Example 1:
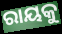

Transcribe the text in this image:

ରାୟକୁ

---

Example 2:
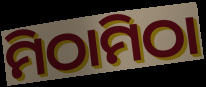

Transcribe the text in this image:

ମିଠାମିଠା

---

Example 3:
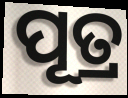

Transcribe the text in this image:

ପୂତ୍ର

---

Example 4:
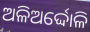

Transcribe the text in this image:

ଅଳିଅର୍ଦ୍ଦୋଳି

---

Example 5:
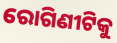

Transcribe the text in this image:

ରୋଗିଣୀଟିକୁ